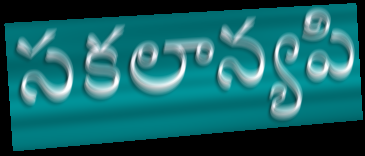
సకలాన్యపి